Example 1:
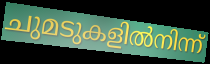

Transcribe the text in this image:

ചുമടുകളിൽനിന്ന്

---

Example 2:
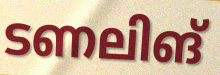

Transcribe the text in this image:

ടണലിങ്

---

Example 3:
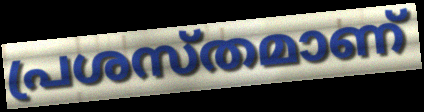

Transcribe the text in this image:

പ്രശസ്തമാണ്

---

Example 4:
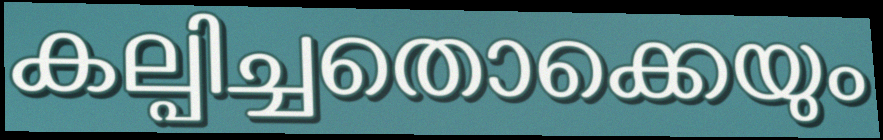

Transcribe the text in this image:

കല്പിച്ചതൊക്കെയും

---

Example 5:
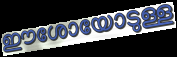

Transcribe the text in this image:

ഈശോയോടുള്ള